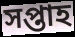
সপ্তাহ